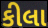
કીલા